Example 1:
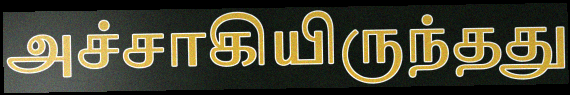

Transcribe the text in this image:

அச்சாகியிருந்தது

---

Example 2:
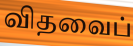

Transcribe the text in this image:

விதவைப்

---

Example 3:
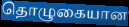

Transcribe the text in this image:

தொழுகையான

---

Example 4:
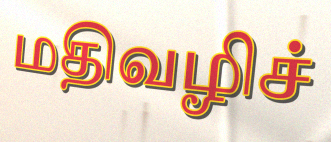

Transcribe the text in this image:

மதிவழிச்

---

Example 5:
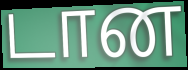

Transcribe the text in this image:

டான